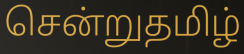
சென்றுதமிழ்